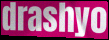
drashyo